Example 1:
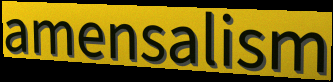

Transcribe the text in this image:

amensalism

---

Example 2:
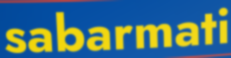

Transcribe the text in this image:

sabarmati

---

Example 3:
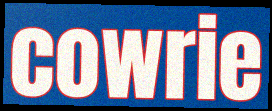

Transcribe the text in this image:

cowrie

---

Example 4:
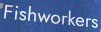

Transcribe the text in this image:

Fishworkers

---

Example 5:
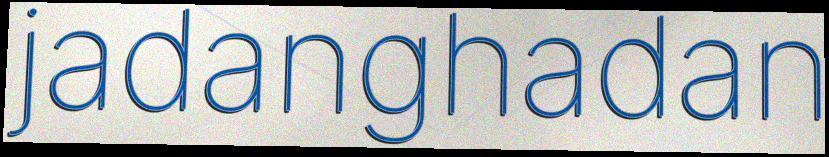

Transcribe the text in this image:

jadanghadan